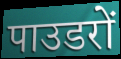
पाउडरों